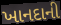
ખાનદાની